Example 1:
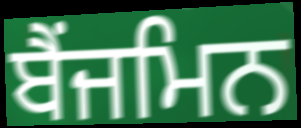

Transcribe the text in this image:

ਬੈਂਜਮਿਨ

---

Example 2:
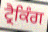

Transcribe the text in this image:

ਟ੍ਰੈਕਿੰਗ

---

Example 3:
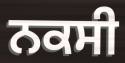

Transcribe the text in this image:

ਨਕਸੀ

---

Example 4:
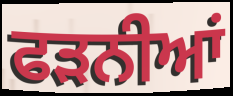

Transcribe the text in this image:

ਫੜਨੀਆਂ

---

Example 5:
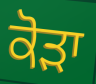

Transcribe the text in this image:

ਕੋੜਾ